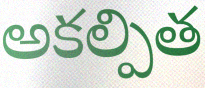
అకల్పిత